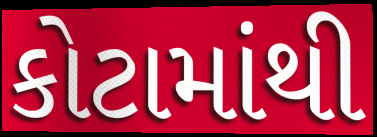
કોટામાંથી